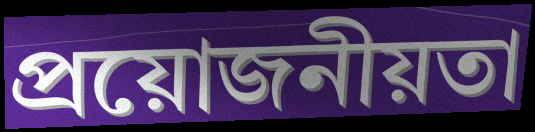
প্রয়োজনীয়তা